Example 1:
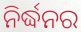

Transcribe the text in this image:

ନିର୍ଦ୍ଧନର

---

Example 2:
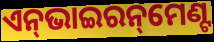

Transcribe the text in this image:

ଏନ୍‌ଭାଇରନ୍‌ମେଣ୍ଟ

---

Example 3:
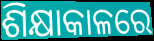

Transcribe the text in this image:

ଶିକ୍ଷାକାଳରେ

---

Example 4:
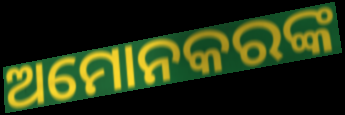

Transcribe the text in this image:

ଅମୋନକରଙ୍କ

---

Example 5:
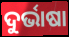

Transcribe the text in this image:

ଦୁର୍ଭାଷା